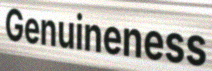
Genuineness